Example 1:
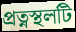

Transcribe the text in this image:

প্রত্নস্থলটি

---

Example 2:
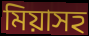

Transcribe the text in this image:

মিয়াসহ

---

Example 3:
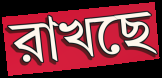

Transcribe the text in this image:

রাখছে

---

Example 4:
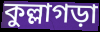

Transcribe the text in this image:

কুল্লাগড়া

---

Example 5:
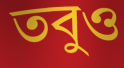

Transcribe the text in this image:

তবুও